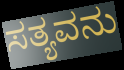
ಸತ್ಯವನು